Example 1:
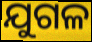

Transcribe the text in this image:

ଯୁଗଳ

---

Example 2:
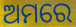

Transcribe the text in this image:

ଅମରେ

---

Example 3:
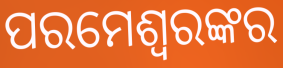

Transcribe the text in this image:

ପରମେଶ୍ଵରଙ୍କର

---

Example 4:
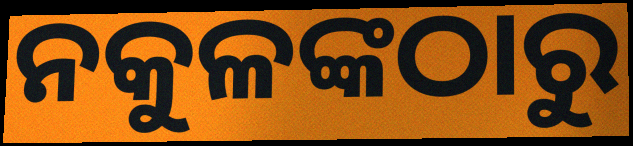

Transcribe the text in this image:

ନକୁଳଙ୍କଠାରୁ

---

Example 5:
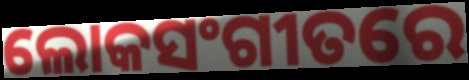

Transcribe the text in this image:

ଲୋକସଂଗୀତରେ